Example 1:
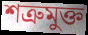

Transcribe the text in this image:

শত্রুমুক্ত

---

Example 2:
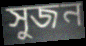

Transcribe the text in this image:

সুজন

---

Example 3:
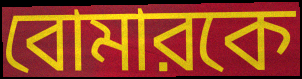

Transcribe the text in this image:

বোমারকে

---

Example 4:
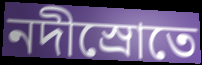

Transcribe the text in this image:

নদীস্রোতে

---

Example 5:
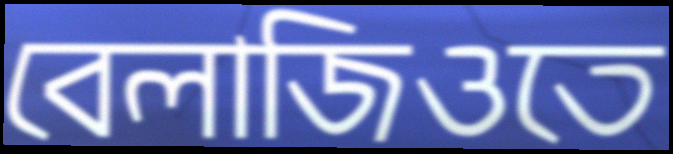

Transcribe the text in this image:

বেলাজিওতে